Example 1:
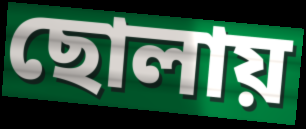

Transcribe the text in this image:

ছোলায়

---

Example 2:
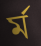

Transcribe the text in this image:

র্ম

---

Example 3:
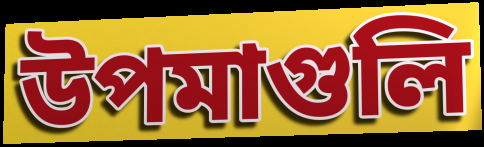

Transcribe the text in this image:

উপমাগুলি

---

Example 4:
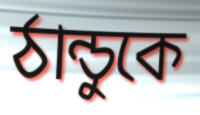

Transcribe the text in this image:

ঠান্ডুকে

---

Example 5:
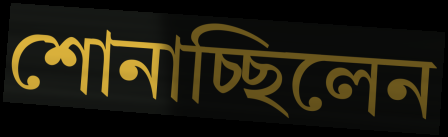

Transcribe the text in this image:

শোনাচ্ছিলেন